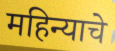
महिन्याचे